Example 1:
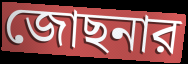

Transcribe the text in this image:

জোছনার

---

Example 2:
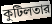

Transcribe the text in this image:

কুটিলতার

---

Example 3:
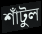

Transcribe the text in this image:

শাঁটুল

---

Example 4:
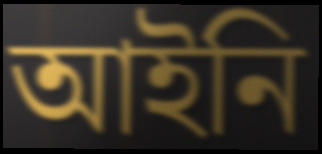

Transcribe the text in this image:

আইনি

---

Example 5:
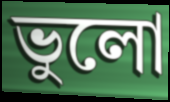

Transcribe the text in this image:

ভুলো